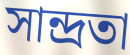
সান্দ্রতা